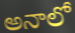
అనాలో